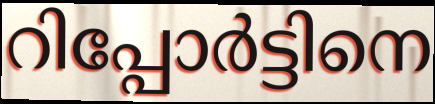
റിപ്പോർട്ടിനെ